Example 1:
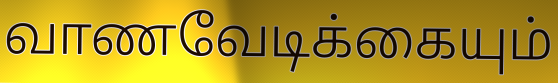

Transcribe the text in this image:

வாணவேடிக்கையும்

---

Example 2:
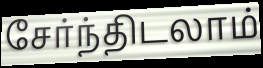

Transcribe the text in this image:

சேர்ந்திடலாம்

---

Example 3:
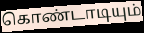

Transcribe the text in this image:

கொண்டாடியும்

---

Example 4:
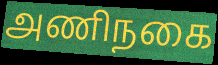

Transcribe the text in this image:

அணிநகை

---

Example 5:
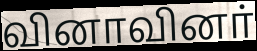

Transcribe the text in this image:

வினாவினர்